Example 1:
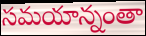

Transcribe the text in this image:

సమయాన్నంతా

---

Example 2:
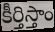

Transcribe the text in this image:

కీర్తిస్తాం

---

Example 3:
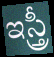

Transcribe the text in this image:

ఇస్త్రీ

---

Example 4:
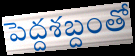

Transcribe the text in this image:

పెద్దశబ్దంతో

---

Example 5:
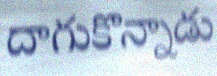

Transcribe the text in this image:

దాగుకొన్నాడు